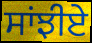
ਸਾਂਝੀਏ